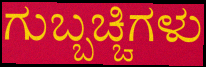
ಗುಬ್ಬಚ್ಚಿಗಳು